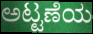
ಅಟ್ಟಣೆಯ